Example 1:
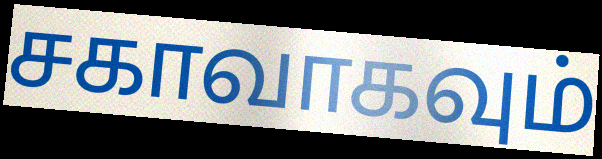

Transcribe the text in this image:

சகாவாகவும்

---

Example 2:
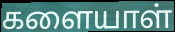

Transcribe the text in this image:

களையாள்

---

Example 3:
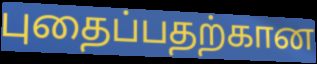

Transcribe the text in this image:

புதைப்பதற்கான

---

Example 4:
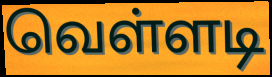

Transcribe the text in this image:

வெள்ளடி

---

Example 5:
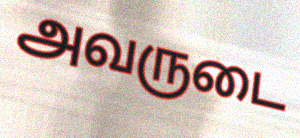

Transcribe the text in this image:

அவருடை